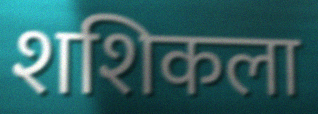
शशिकला